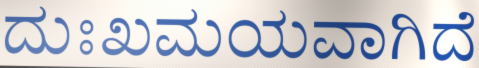
ದುಃಖಮಯವಾಗಿದೆ